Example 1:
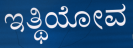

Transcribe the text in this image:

ಇತ್ಥಿಯೋವ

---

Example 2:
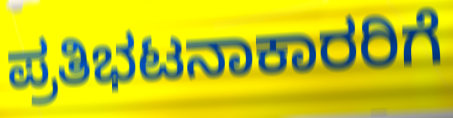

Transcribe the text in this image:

ಪ್ರತಿಭಟನಾಕಾರರಿಗೆ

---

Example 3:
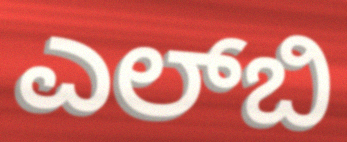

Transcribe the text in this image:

ಎಲ್‌ಬಿ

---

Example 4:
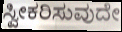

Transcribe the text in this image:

ಸ್ವೀಕರಿಸುವುದೇ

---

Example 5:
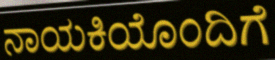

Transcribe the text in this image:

ನಾಯಕಿಯೊಂದಿಗೆ